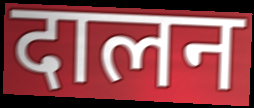
दालन